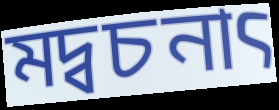
মদ্বচনাৎ